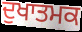
ਦੁਖਾਤਮਕ